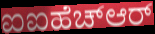
ಐಐಹೆಚ್ಆರ್